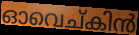
ഓവെച്കിൻ